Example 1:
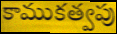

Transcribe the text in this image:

కాముకత్వపు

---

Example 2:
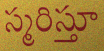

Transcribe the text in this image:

స్మరిస్తూ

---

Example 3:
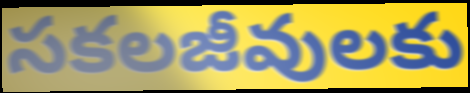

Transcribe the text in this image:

సకలజీవులకు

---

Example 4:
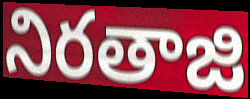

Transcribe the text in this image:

నిరతాజి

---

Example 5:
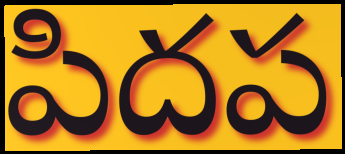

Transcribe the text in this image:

పిదప